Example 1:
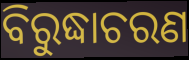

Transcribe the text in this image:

ବିରୁଦ୍ଧାଚରଣ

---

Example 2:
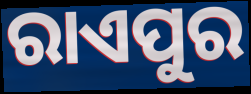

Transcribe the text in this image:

ରାଏପୁର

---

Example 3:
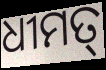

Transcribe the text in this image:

ଧୀମତ୍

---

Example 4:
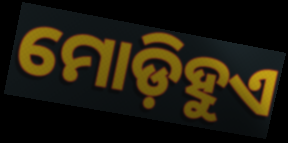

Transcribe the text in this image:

ମୋଡ଼ିହୁଏ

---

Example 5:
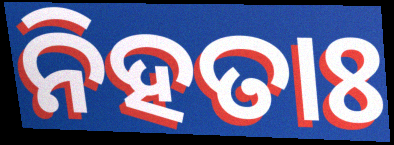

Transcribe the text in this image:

ନିହତାଃ